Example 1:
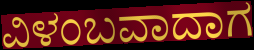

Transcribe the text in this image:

ವಿಳಂಬವಾದಾಗ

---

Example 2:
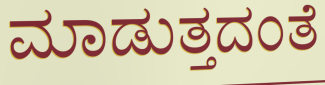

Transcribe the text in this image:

ಮಾಡುತ್ತದಂತೆ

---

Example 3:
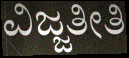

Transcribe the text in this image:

ವಿಜ್ಜತೀತಿ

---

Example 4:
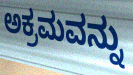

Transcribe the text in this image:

ಅಕ್ರಮವನ್ನು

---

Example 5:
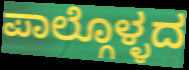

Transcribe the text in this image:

ಪಾಲ್ಗೊಳ್ಳದ